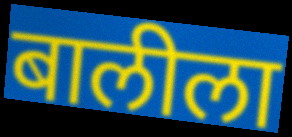
बालीला